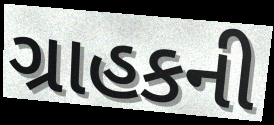
ગ્રાહકની